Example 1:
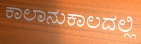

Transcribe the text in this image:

ಕಾಲಾನುಕಾಲದಲ್ಲಿ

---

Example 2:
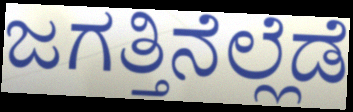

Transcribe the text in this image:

ಜಗತ್ತಿನೆಲ್ಲೆಡೆ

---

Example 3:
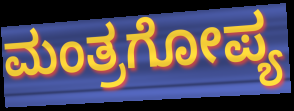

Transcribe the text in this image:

ಮಂತ್ರಗೋಪ್ಯ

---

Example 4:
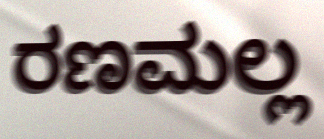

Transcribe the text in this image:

ರಣಮಲ್ಲ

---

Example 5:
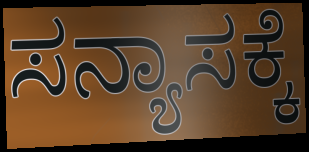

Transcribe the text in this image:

ಸನ್ಯಾಸಕ್ಕೆ